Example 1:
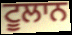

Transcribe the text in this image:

ਟੂਲਾਨ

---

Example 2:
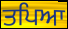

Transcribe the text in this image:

ਤਪਿਆ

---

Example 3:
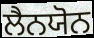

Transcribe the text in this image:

ਲੈਨਯੋਨ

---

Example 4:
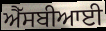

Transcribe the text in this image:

ਐੱਸਬੀਆਈ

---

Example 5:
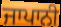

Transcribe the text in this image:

ਜਾਪਾਨੀ